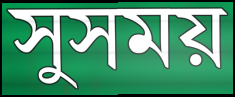
সুসময়